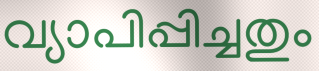
വ്യാപിപ്പിച്ചതും